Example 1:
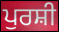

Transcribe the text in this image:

ਪੁਰਸ਼ੀ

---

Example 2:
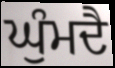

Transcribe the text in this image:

ਘੁੰਮਦੈ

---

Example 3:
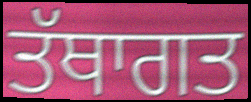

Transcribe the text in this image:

ਤੱਥਾਗਤ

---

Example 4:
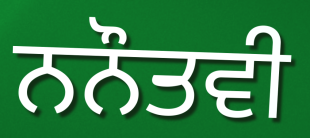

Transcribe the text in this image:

ਨਨੌਤਵੀ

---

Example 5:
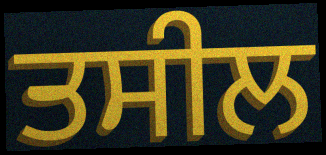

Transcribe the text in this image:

ਤਸੀਲ